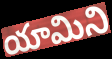
యామిని